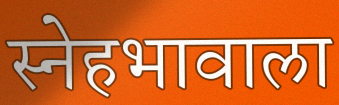
स्नेहभावाला